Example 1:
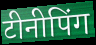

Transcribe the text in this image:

टीनीपिंग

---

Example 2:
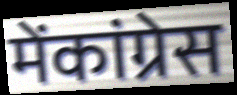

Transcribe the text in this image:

मेंकांग्रेस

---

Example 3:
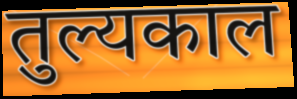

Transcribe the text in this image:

तुल्यकाल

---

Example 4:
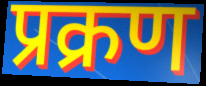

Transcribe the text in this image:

प्रक्रण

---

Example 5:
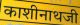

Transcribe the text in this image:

काशीनाथजी